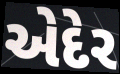
એદેર